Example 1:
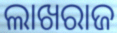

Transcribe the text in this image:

ଲାଖରାଜ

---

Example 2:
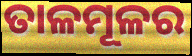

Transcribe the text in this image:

ତାଳମୂଳର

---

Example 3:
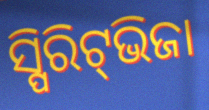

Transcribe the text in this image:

ସ୍ପିରିଟ୍‌ଭିଜା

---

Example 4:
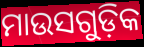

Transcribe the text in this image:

ମାଉସଗୁଡ଼ିକ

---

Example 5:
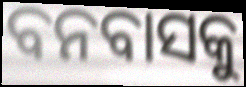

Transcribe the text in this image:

ବନବାସକୁ